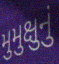
મુમુક્ષુનું